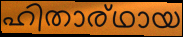
ഹിതാര്ഥായ